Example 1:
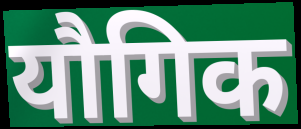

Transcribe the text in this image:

यौगिक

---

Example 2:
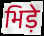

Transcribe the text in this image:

भिड़े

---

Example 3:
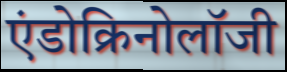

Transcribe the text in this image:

एंडोक्रिनोलॉजी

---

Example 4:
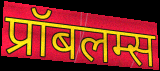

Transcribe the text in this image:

प्रॉबलम्स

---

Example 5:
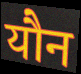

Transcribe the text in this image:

यौन